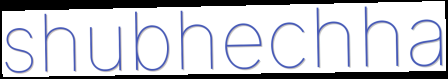
shubhechha